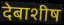
देबाशीष